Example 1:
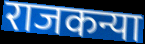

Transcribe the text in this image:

राजकन्या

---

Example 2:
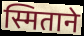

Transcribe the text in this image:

स्मिताने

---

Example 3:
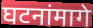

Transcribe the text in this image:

घटनांमागे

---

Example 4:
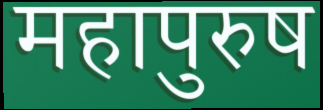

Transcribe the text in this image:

महापुरुष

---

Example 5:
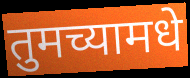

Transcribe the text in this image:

तुमच्यामधे